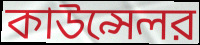
কাউন্সেলর